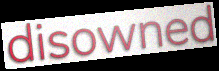
disowned